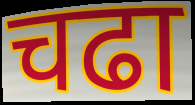
चढा